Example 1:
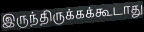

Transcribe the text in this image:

இருந்திருக்கக்கூடாது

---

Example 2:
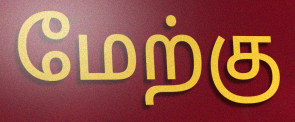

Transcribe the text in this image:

மேற்கு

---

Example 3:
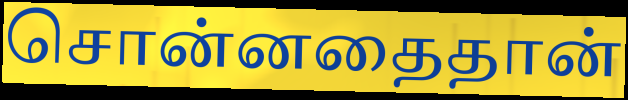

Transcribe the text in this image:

சொன்னதைதான்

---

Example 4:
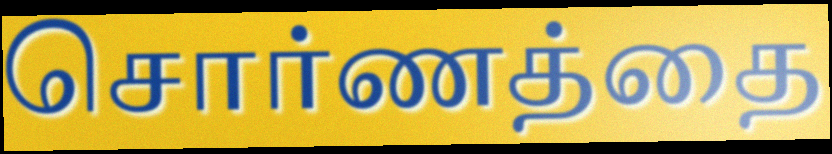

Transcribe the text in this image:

சொர்ணத்தை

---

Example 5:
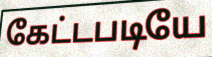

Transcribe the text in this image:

கேட்டபடியே